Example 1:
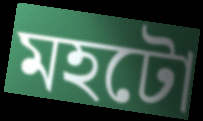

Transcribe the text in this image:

মহটো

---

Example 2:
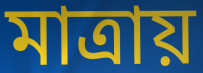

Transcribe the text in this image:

মাত্ৰায়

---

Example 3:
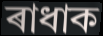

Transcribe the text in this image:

ৰাধাক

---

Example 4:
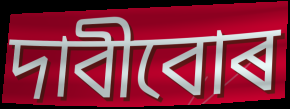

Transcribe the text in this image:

দাবীবোৰ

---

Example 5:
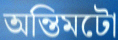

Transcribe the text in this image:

অন্তিমটো